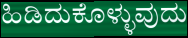
ಹಿಡಿದುಕೊಳ್ಳುವುದು